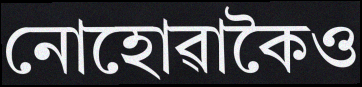
নোহোৱাকৈও